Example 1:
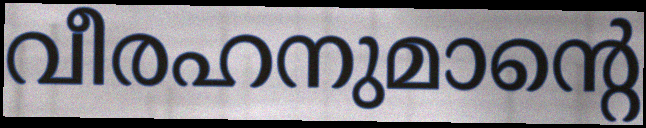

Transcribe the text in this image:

വീരഹനുമാന്റെ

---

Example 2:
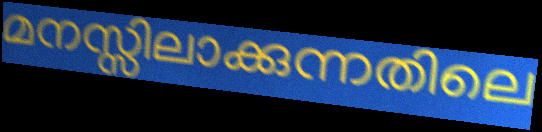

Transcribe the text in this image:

മനസ്സിലാക്കുന്നതിലെ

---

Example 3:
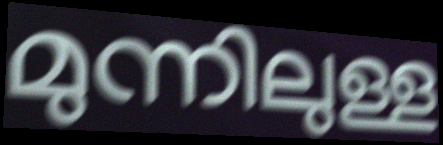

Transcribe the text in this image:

മുന്നിലുള്ള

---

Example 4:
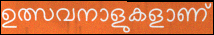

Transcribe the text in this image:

ഉത്സവനാളുകളാണ്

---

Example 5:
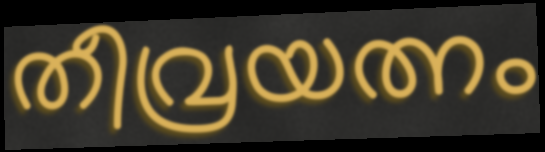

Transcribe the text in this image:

തീവ്രയത്നം